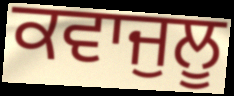
ਕਵਾਜੁਲੂ